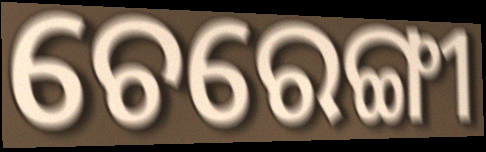
ଚେରେଙ୍ଗୀ